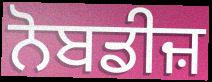
ਨੋਬਡੀਜ਼